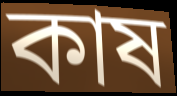
কাষ